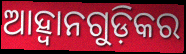
ଆହ୍ୱାନଗୁଡ଼ିକର